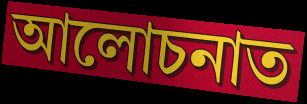
আলোচনাত